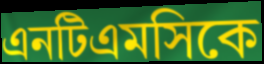
এনটিএমসিকে